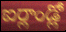
ఐర్లాండ్లో